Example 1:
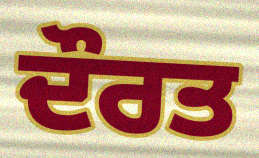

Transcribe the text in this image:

ਦੌਰਤ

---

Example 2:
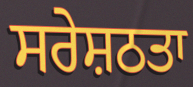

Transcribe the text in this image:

ਸਰੇਸ਼ਠਤਾ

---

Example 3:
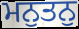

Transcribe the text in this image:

ਮਨੁਤਨੁ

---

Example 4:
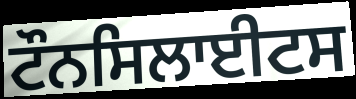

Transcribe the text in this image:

ਟੌਨਸਿਲਾਈਟਸ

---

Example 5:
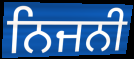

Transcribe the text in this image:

ਨਿਜਨੀ